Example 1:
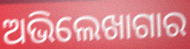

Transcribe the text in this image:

ଅଭିଲେଖାଗାର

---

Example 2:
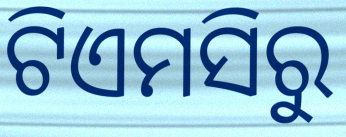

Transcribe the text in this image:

ଟିଏମସିରୁ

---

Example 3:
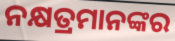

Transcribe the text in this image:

ନକ୍ଷତ୍ରମାନଙ୍କର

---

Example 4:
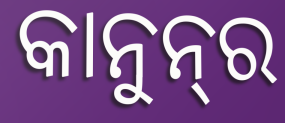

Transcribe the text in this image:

କାନୁନ୍‌ର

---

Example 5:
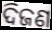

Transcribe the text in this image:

ଦିଜଣ